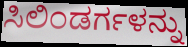
ಸಿಲಿಂಡರ್ಗಳನ್ನು